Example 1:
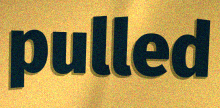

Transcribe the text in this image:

pulled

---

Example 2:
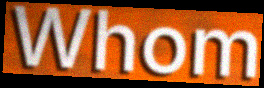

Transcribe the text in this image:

Whom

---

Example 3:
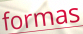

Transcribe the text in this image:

formas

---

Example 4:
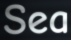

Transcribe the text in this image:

Sea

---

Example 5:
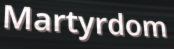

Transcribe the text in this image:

Martyrdom